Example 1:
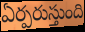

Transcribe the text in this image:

ఏర్పరుస్తుంది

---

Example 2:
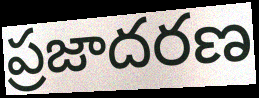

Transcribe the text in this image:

ప్రజాదరణ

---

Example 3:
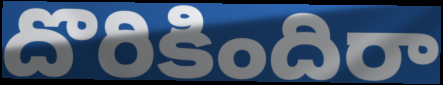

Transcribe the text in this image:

దొరికిందిరా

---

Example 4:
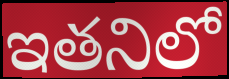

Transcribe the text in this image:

ఇతనిలో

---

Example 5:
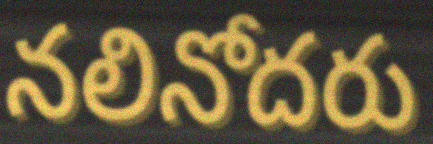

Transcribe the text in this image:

నలినోదరు